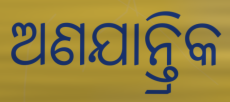
ଅଣଯାନ୍ତ୍ରିକ